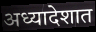
अध्यादेशात